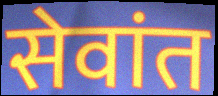
सेवांत